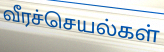
வீரச்செயல்கள்